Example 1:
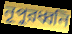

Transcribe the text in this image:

নূপুরধ্বনি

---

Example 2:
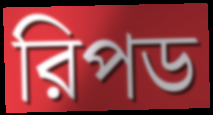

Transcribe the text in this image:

রিপড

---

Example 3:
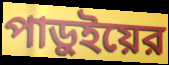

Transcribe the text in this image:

পাড়ুইয়ের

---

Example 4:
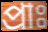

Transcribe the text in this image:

প্রাঃ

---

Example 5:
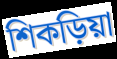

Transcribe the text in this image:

শিকড়িয়া